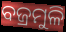
ବଜ୍ରମୁଳି